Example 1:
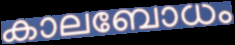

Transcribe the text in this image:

കാലബോധം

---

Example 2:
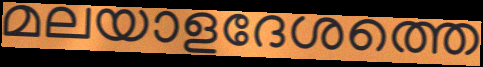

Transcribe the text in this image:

മലയാളദേശത്തെ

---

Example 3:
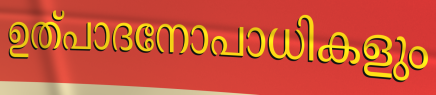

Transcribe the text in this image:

ഉത്പാദനോപാധികളും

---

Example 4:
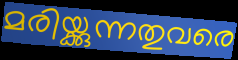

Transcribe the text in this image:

മരിയ്ക്കുന്നതുവരെ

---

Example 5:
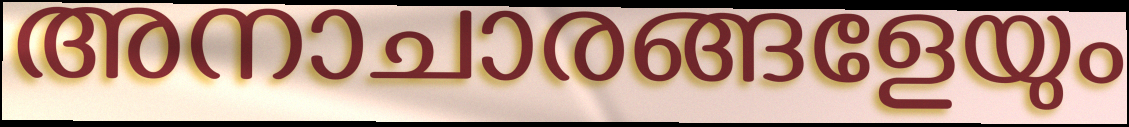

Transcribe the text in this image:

അനാചാരങ്ങളേയും